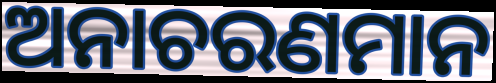
ଅନାଚରଣମାନ